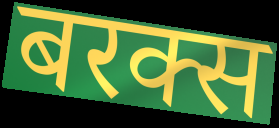
बरक्स